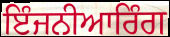
ਇੰਜਨੀਆਰਿੰਗ